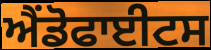
ਐਂਡੋਫਾਈਟਸ